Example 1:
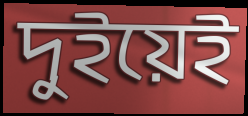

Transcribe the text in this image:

দুইয়েই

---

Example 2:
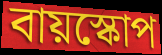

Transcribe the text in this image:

বায়স্কোপ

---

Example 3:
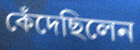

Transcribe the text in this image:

কেঁদেছিলেন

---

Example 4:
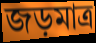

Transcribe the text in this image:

জড়মাত্র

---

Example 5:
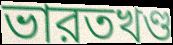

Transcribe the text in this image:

ভারতখণ্ড